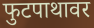
फुटपाथावर